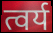
त्वर्य